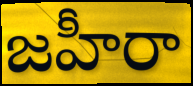
జహీరా